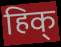
हिक्